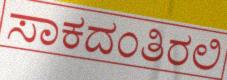
ಸಾಕದಂತಿರಲಿ